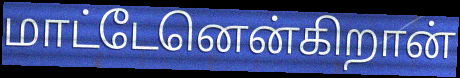
மாட்டேனென்கிறான்